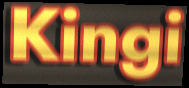
Kingi